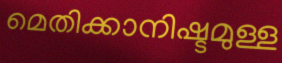
മെതിക്കാനിഷ്ടമുള്ള